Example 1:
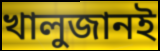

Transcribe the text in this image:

খালুজানই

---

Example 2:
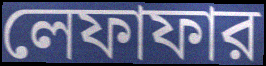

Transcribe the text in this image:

লেফাফার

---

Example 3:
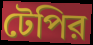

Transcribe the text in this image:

টেপির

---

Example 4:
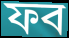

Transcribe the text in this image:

ফব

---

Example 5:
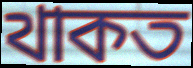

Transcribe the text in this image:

থাকত